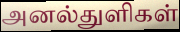
அனல்துளிகள்